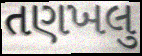
તણખલુ